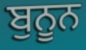
ਬੁਨੂਨ